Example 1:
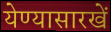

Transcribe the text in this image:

येण्यासारखें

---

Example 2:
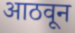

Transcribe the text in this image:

आठवून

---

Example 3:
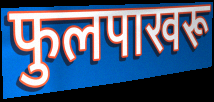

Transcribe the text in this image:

फुलपाखरू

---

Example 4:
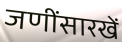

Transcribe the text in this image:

जणींसारखें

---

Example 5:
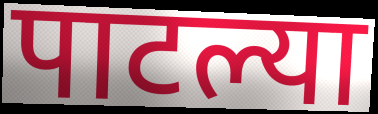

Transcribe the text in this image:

पाटल्या